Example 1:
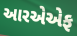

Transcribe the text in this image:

આરએએફ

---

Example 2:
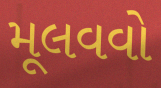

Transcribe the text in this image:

મૂલવવો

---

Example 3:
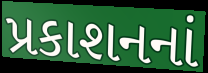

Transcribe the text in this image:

પ્રકાશનનાં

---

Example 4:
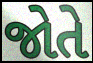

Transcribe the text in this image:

જોતે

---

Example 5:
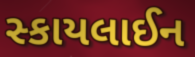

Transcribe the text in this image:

સ્કાયલાઈન